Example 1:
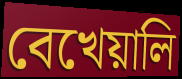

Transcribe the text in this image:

বেখেয়ালি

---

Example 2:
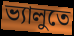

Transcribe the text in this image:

ভ্যালুতে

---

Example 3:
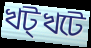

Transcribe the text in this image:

খট্‌খটে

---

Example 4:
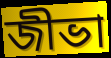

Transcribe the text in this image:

জীভা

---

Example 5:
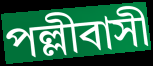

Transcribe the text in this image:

পল্লীবাসী